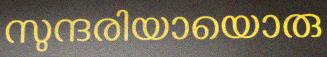
സുന്ദരിയായൊരു